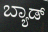
ಬ್ಯಾಡ್